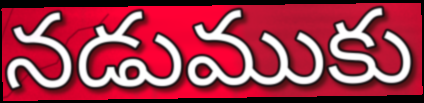
నడుముకు